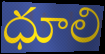
ధూలి